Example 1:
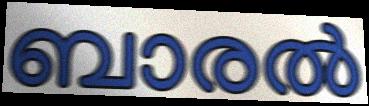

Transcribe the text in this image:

ബാരൽ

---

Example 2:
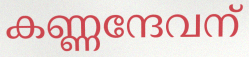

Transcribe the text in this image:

കണ്ണന്ദേവന്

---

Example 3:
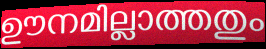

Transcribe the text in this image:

ഊനമില്ലാത്തതും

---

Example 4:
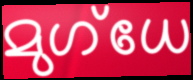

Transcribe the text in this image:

മുഗ്ധേ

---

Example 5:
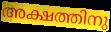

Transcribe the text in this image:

അക്ഷത്തിനു